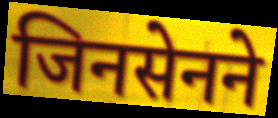
जिनसेनने